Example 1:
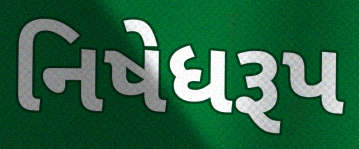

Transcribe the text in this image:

નિષેધરૂપ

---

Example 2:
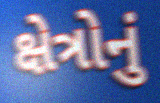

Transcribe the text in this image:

ક્ષેત્રોનું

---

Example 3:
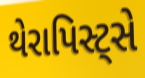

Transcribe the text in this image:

થેરાપિસ્ટ્સે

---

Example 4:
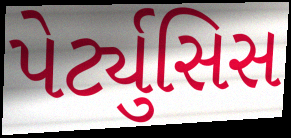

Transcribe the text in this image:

પેર્ટ્યુસિસ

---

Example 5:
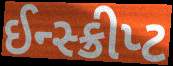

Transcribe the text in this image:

ઈન્સ્ક્રીપ્ટ